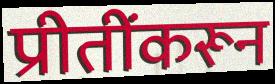
प्रीतींकरून